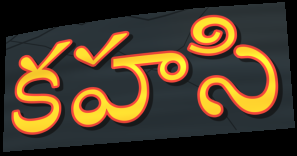
కహసి